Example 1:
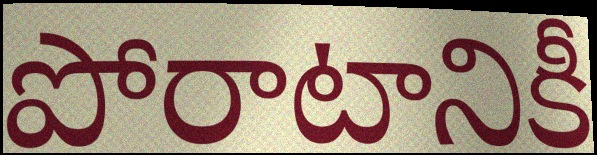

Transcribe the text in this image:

పోరాటానికీ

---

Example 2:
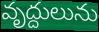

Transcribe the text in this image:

వృద్దులును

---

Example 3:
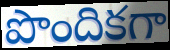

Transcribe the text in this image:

పొందికగా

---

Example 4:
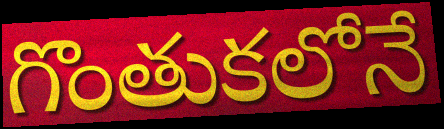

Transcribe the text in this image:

గొంతుకలోనే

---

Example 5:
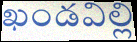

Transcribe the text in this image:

ఖండవిల్లి